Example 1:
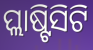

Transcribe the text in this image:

ପ୍ଲାଷ୍ଟିସିଟି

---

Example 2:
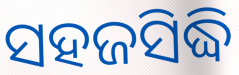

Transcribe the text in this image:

ସହଜସିଦ୍ଧି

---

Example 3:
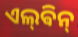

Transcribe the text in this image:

ଏଲ୍‌ଵିନ୍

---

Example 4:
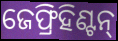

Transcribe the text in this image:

ଜେଫ୍ରିହିଣ୍ଟନ୍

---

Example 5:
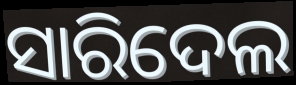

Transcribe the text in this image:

ସାରିଦେଲ